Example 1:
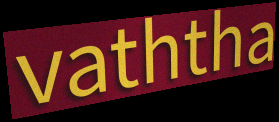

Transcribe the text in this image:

vaththa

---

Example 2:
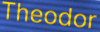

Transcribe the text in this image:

Theodor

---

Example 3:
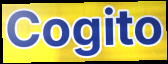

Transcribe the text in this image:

Cogito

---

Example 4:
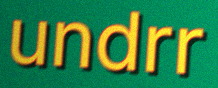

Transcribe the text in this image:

undrr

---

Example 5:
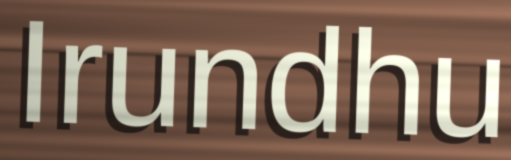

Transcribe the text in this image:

Irundhu